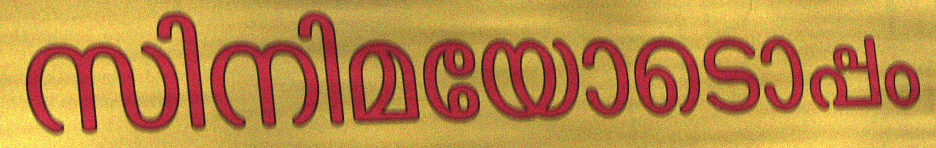
സിനിമയോടൊപ്പം